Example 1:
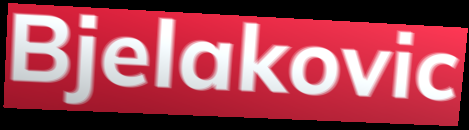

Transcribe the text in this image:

Bjelakovic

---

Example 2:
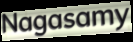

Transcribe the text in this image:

Nagasamy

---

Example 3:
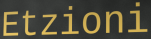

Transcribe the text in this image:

Etzioni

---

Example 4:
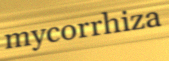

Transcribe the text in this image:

mycorrhiza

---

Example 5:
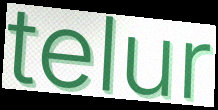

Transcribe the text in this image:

telur